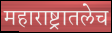
महाराष्ट्रातलेच